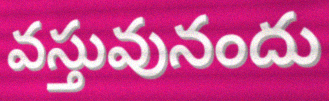
వస్తువునందు